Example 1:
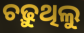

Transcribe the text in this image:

ଚଢ଼ୁଥିଲୁ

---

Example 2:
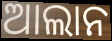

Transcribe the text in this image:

ଆଲାନ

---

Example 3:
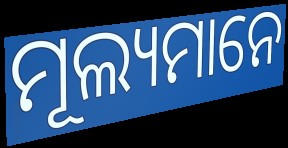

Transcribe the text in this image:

ମୂଲ୍ୟମାନେ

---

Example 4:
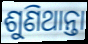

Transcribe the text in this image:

ଶୁଣିଥାନ୍ତା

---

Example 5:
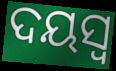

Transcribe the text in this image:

ଦୟସ୍ଵ